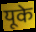
यूके